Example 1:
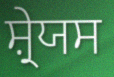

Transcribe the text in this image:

ਸ਼੍ਰੇਯਸ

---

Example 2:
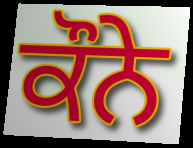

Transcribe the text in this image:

ਕੌਨੇ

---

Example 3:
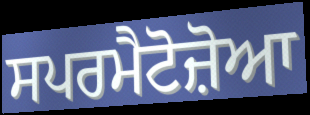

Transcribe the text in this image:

ਸਪਰਮੈਟੋਜ਼ੋਆ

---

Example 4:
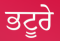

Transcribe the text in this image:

ਭਟੂਰੇ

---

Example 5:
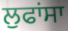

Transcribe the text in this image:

ਲੁਫਾਂਸਾ